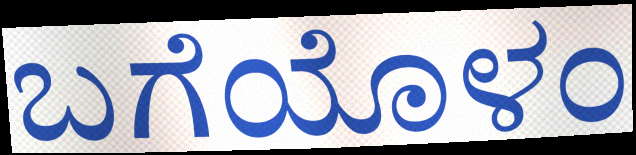
ಬಗೆಯೊಳಂ